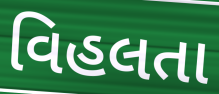
વિહલતા